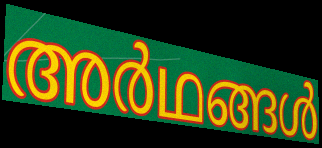
അർഥങ്ങൾ